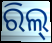
ରିଲ୍